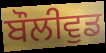
ਬੌਲੀਵੁਡ